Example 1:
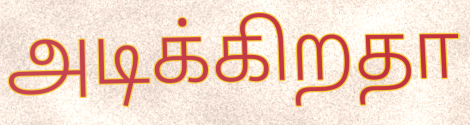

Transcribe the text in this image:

அடிக்கிறதா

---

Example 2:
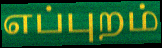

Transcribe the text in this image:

எப்புறம்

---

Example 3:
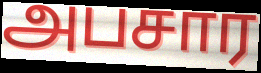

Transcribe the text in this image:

அபசார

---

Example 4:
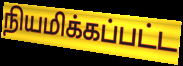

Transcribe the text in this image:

நியமிக்கப்பட்ட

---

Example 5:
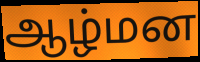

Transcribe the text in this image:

ஆழ்மன